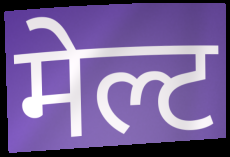
मेल्ट